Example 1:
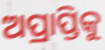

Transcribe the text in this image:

ଅପ୍ରାପ୍ତିକୁ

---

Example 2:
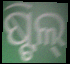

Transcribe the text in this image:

ଷ୍ଟିଲ୍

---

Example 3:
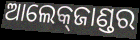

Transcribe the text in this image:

ଆଲେକ୍‌ଜାଣ୍ଡର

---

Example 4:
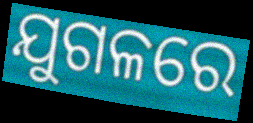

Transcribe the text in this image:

ଯୁଗଳରେ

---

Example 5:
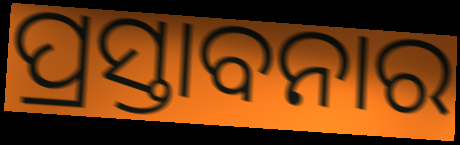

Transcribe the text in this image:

ପ୍ରସ୍ତାବନାର